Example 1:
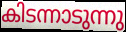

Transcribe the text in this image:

കിടന്നാടുന്നു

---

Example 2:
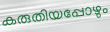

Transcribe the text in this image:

കരുതിയപ്പോഴും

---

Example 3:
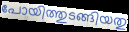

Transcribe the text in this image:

പോയിത്തുടങ്ങിയതു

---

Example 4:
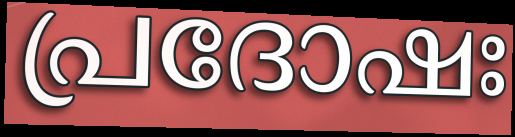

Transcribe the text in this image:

പ്രദോഷഃ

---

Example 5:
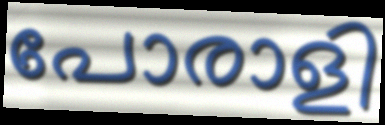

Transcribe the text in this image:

പോരാളി